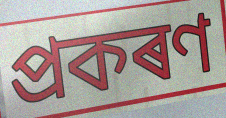
প্ৰকৰণ